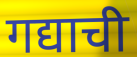
गद्याची